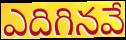
ఎదిగినవే